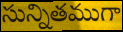
సున్నితముగా